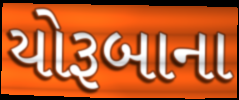
યોરૂબાના